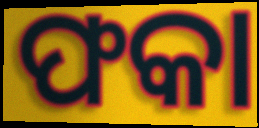
ଫକା